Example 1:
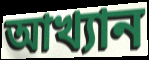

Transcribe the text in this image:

আখ্যান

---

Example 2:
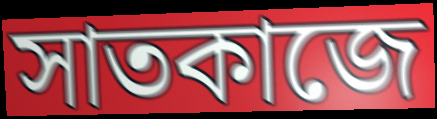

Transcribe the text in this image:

সাতকাজে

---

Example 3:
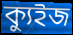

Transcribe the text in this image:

ক্যুইজ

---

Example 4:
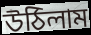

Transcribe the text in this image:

উঠিলাম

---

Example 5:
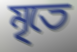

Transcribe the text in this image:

মৃতে